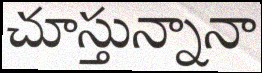
చూస్తున్నానా